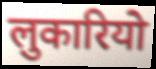
लुकारियो